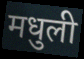
मधुली